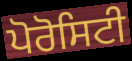
ਪੋਰੋਸਿਟੀ